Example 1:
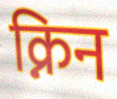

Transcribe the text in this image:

क्निन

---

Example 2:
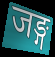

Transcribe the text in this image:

जङ्ग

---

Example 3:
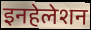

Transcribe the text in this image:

इनहेलेशन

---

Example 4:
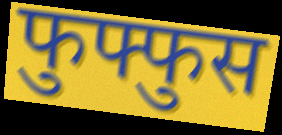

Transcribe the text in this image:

फुफ्फुस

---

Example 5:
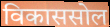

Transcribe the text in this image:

विकाससोल